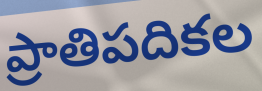
ప్రాతిపదికల